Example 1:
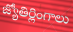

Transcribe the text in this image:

జ్యోతిర్లింగాలు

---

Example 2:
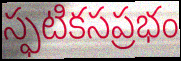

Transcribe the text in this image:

స్ఫటికసప్రభం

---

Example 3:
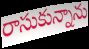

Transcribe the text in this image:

రాసుకున్నాను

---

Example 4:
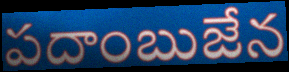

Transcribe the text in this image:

పదాంబుజేన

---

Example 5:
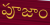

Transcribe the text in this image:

పూజాం